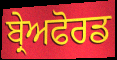
ਬ੍ਰੇਅਫੋਰਡ